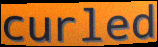
curled